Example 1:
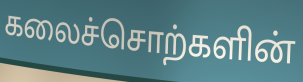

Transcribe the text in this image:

கலைச்சொற்களின்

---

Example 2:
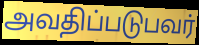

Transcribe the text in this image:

அவதிப்படுபவர்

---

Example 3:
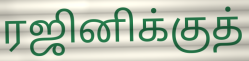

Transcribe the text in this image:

ரஜினிக்குத்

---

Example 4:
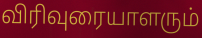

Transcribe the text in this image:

விரிவுரையாளரும்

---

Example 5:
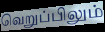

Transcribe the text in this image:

வெறுப்பிலும்